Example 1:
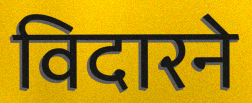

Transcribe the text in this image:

विदारने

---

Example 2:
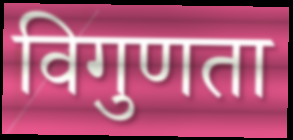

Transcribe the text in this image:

विगुणता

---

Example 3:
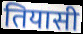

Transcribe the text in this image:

तियासी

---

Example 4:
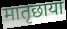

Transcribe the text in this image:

मातृछाया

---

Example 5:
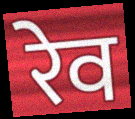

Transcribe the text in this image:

रेव